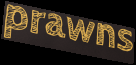
prawns